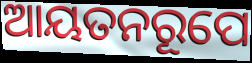
ଆୟତନରୂପେ